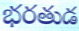
భరతుడ